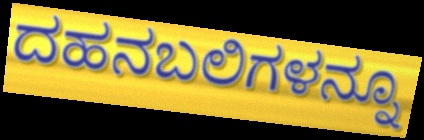
ದಹನಬಲಿಗಳನ್ನೂ